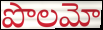
పొలమో